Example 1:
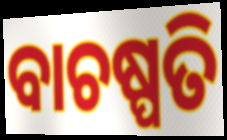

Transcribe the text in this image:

ବାଚଷ୍ପତି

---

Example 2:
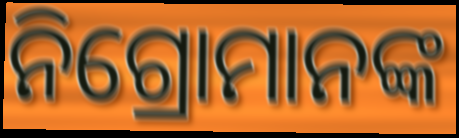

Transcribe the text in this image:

ନିଗ୍ରୋମାନଙ୍କ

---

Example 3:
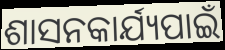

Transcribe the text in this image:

ଶାସନକାର୍ଯ୍ୟପାଇଁ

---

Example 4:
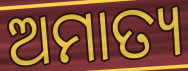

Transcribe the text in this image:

ଅମାତ୍ୟ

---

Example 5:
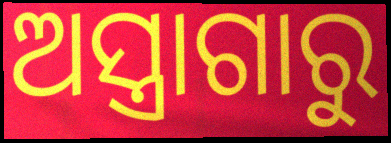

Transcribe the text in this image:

ଅସ୍ତ୍ରାଗାରୁ